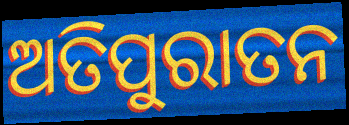
ଅତିପୁରାତନ